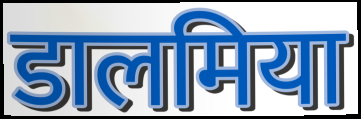
डालमिया